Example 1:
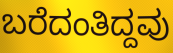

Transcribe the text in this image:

ಬರೆದಂತಿದ್ದವು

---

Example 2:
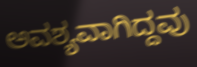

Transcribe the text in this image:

ಅವಶ್ಯವಾಗಿದ್ದವು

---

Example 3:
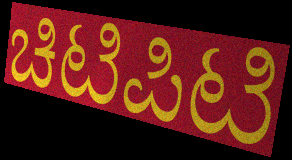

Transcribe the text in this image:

ಚಿಟಿಪಿಟಿ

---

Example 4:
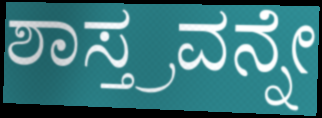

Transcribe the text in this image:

ಶಾಸ್ತ್ರವನ್ನೇ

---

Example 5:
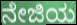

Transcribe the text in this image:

ನೇಜಿಯ